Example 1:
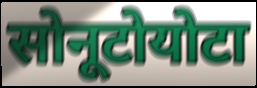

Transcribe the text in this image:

सोनूटोयोटा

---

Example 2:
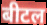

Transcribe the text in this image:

बीटल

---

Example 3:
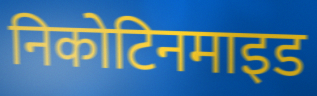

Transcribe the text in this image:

निकोटिनमाइड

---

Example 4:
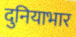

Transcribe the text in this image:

दुनियाभार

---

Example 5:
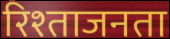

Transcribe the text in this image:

रिश्ताजनता